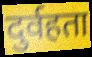
दुर्वहता